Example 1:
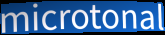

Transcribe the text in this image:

microtonal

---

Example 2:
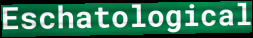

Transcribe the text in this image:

Eschatological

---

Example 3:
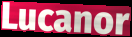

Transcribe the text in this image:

Lucanor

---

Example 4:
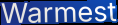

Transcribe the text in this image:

Warmest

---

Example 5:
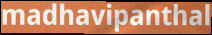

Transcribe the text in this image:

madhavipanthal